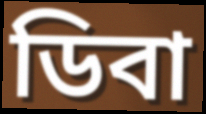
ডিবা